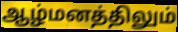
ஆழ்மனத்திலும்